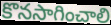
కొనసాగించాలి